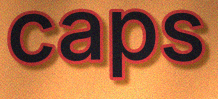
caps